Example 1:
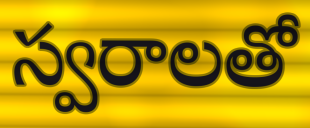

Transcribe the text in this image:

స్వరాలతో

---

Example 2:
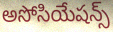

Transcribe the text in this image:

అసోసియేషన్స్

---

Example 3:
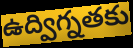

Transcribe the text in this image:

ఉద్విగ్నతకు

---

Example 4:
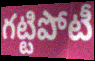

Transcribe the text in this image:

గట్టిపోటీ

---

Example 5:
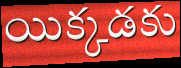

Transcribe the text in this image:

యిక్కడకు